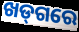
ଖଡ୍‌ଗରେ